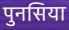
पुनसिया